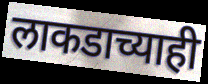
लाकडाच्याही